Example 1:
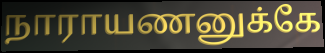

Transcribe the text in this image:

நாராயணனுக்கே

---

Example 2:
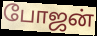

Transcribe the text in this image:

போஜன்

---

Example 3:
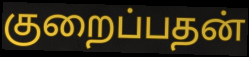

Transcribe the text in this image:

குறைப்பதன்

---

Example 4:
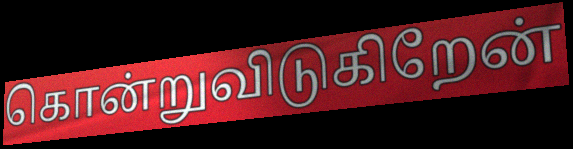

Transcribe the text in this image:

கொன்றுவிடுகிறேன்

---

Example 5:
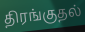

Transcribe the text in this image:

திரங்குதல்